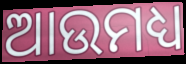
ଆଉମଧ୍ୟ